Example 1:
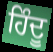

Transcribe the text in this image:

ਹਿੰਦੂ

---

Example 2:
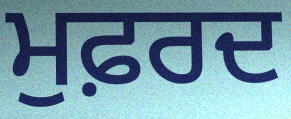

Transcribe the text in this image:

ਮੁਫ਼ਰਦ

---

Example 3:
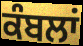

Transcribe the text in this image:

ਕੰਬਲਾਂ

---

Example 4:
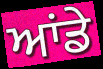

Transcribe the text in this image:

ਆਂਡੇ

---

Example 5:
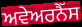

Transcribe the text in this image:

ਅਵੇਅਰਨੈੱਸ